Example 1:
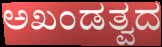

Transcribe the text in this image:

ಅಖಂಡತ್ವದ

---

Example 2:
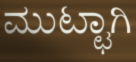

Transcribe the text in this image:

ಮುಟ್ಟಾಗಿ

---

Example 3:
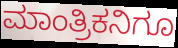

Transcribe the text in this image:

ಮಾಂತ್ರಿಕನಿಗೂ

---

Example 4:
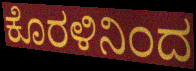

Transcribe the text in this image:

ಕೊರಳಿನಿಂದ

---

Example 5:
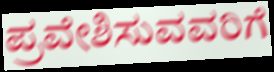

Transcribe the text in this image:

ಪ್ರವೇಶಿಸುವವರಿಗೆ